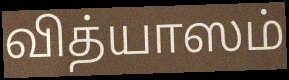
வித்யாஸம்